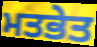
ਮਤਭੇਤ